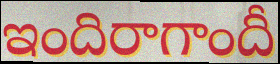
ఇందిరాగాందీ